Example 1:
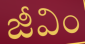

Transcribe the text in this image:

జీవిం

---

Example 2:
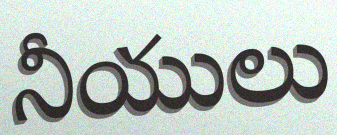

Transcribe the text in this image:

నీయులు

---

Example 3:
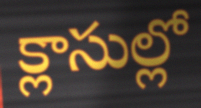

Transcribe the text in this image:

క్లాసుల్లో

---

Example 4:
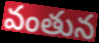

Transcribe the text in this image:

వంతున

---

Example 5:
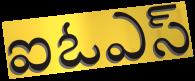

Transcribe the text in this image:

ఐఓఎస్